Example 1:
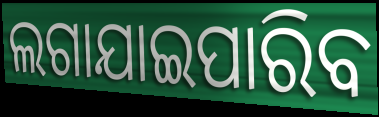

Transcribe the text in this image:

ଲଗାଯାଇପାରିବ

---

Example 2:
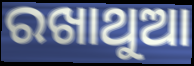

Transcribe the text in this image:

ରଖାଥୁଆ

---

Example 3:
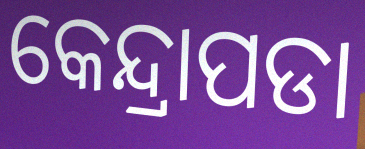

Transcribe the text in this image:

କେନ୍ଦ୍ରାପଡା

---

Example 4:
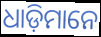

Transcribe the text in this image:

ଧାଡ଼ିମାନେ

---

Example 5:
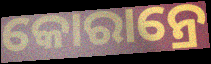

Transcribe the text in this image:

କୋରାନ୍ରେ